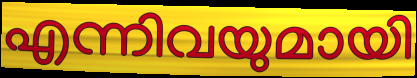
എന്നിവയുമായി